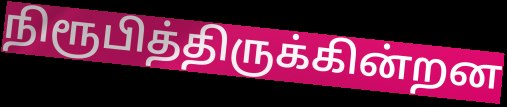
நிரூபித்திருக்கின்றன